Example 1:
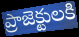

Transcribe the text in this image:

ప్రాజెక్టులకి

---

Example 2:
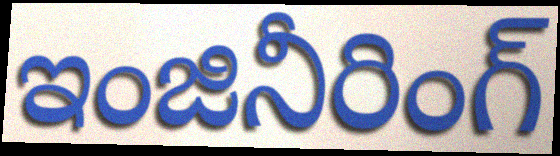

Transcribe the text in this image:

ఇంజినీరింగ్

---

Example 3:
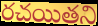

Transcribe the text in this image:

రచయితని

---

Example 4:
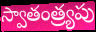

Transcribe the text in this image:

స్వాతంత్ర్యపు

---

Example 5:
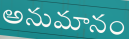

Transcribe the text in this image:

అనుమానం